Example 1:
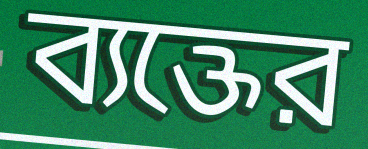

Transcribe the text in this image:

ব্যক্তের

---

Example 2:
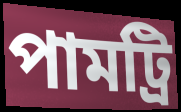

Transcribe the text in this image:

পামট্রি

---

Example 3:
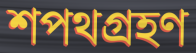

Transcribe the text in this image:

শপথগ্রহণ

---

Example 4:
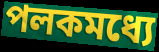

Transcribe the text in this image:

পলকমধ্যে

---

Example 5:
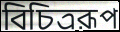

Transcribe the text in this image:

বিচিত্ররূপ